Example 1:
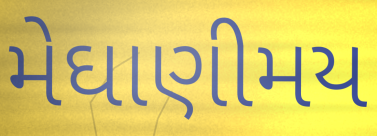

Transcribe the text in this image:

મેઘાણીમય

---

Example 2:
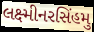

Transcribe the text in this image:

લક્ષ્મીનરસિંહમુ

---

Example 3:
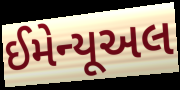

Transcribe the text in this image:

ઈમેન્યૂઅલ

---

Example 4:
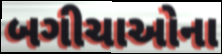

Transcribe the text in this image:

બગીચાઓના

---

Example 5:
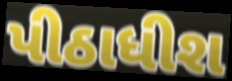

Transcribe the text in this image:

પીઠાધીશ